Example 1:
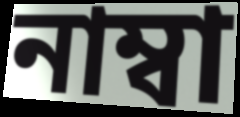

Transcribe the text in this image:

নাম্বা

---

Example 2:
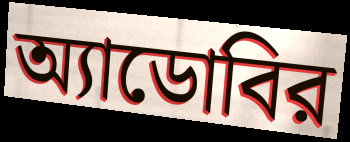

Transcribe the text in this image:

অ্যাডোবির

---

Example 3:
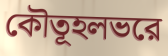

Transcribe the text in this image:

কৌতূহলভরে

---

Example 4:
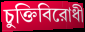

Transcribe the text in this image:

চুক্তিবিরোধী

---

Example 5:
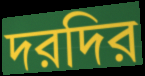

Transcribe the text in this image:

দরদির